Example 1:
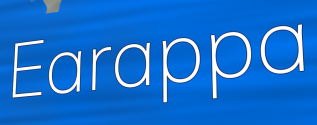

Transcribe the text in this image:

Earappa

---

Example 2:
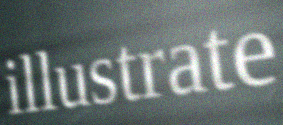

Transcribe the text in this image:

illustrate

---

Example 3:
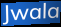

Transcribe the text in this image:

Jwala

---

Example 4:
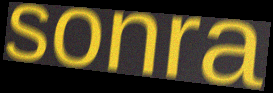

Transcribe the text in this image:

sonra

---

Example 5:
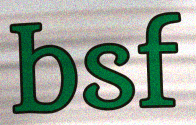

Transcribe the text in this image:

bsf